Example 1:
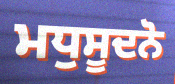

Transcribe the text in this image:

ਮਧੁਸੂਦਨੋ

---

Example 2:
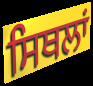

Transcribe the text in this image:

ਸਿਥਲਾਂ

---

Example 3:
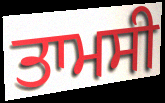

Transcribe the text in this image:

ਤਾਮਸੀ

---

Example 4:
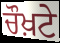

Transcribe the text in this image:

ਚੌਖ਼ਟੇ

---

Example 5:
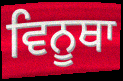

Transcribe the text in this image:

ਵਿਨੂਥਾ